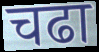
चढा